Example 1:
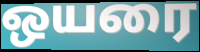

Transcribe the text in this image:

ஒயரை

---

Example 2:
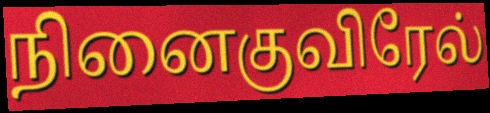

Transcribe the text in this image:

நினைகுவிரேல்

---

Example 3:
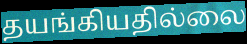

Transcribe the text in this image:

தயங்கியதில்லை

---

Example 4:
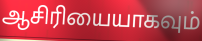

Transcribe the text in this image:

ஆசிரியையாகவும்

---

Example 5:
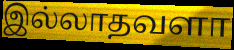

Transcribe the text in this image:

இல்லாதவளா